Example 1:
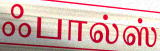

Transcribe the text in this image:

ஃபால்ஸ்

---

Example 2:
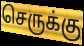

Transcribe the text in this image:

செருக்கு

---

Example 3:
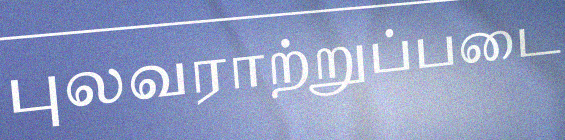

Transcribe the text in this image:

புலவராற்றுப்படை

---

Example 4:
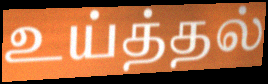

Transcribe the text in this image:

உய்த்தல்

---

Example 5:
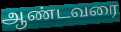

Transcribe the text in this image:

ஆண்டவரை